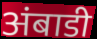
अंबाडी